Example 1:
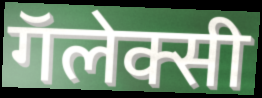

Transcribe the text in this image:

गॅलेक्सी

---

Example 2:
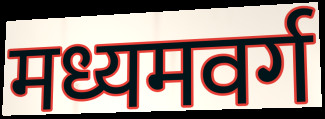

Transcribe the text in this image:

मध्यमवर्ग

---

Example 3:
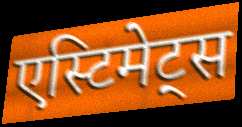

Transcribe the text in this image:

एस्टिमेट्स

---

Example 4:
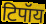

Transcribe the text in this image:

टिपॉय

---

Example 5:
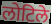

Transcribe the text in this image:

लोटिले